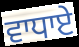
ਵਾਧਾਏ